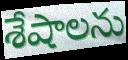
శేషాలను